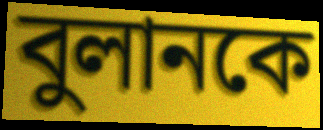
বুলানকে